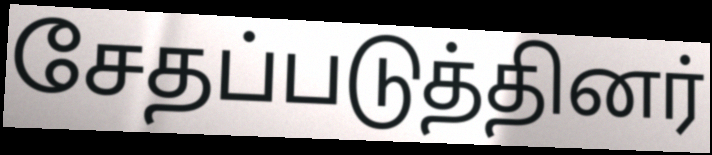
சேதப்படுத்தினர்